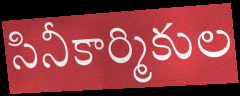
సినీకార్మికుల